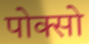
पोक्सो